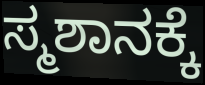
ಸ್ಮಶಾನಕ್ಕೆ